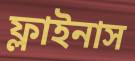
ফ্লাইনাস